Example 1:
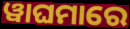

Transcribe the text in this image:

ୱାଘମାରେ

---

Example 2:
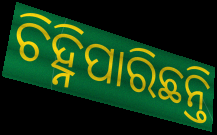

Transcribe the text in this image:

ଚିହ୍ନିପାରିଛନ୍ତି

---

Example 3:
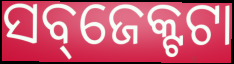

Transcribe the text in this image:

ସବ୍‌ଜେକ୍ଟଟା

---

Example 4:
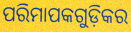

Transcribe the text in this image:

ପରିମାପକଗୁଡ଼ିକର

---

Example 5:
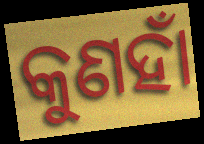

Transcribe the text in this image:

କୁଣହାଁ